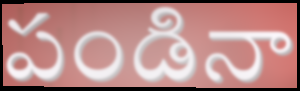
పండినా